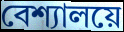
বেশ্যালয়ে